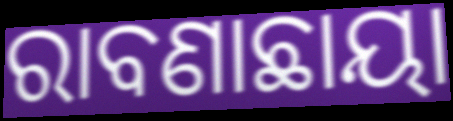
ରାବଣାଛାୟା